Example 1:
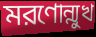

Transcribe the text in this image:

মরণোন্মুখ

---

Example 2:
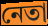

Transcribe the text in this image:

নেতা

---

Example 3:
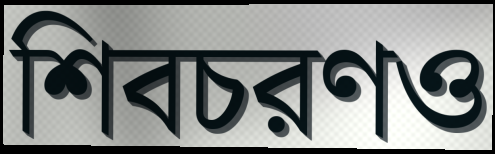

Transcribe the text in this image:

শিবচরণও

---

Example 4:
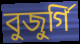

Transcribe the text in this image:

বুজুর্গি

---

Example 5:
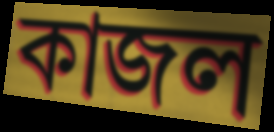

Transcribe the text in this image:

কাজল